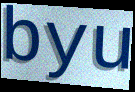
byu